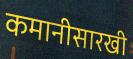
कमानीसारखी